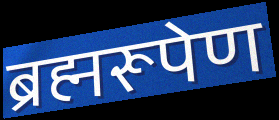
ब्रह्मरूपेण